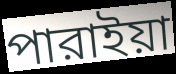
পারাইয়া